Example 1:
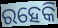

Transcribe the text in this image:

ରହେକି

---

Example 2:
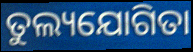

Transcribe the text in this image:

ତୁଲ୍ୟଯୋଗିତା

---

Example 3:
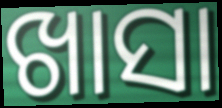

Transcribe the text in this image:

ଖାସା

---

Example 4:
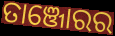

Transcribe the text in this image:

ତାଞ୍ଜୋରର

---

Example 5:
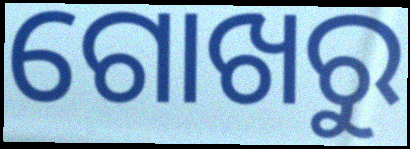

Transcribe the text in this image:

ଗୋଖରୁ